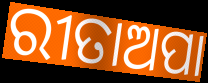
ରୀତାଅପା